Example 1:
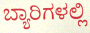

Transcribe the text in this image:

ಬ್ಯಾರಿಗಳಲ್ಲಿ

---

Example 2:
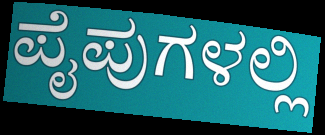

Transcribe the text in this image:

ಪೈಪುಗಳಲ್ಲಿ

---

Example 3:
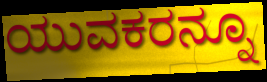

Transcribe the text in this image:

ಯುವಕರನ್ನೂ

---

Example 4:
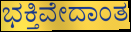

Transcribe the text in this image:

ಭಕ್ತಿವೇದಾಂತ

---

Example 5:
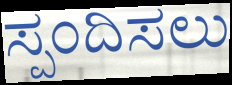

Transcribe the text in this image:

ಸ್ಪಂದಿಸಲು